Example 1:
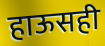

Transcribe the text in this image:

हाऊसही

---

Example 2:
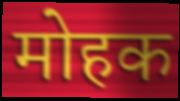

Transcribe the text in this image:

मोहक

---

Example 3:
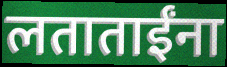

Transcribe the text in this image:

लताताईंना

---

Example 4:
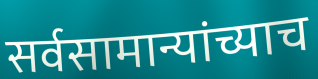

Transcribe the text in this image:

सर्वसामान्यांच्याच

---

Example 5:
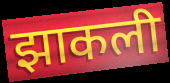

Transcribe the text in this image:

झाकली